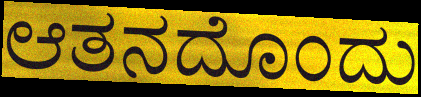
ಆತನದೊಂದು